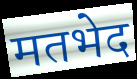
मतभेद